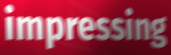
impressing